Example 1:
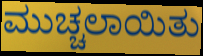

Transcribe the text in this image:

ಮುಚ್ಚಲಾಯಿತು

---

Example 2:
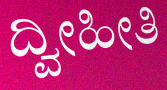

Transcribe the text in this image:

ದ್ವೀಹೀತಿ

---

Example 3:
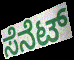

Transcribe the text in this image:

ಸೆನೆಟ್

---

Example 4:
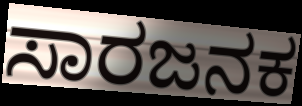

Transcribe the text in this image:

ಸಾರಜನಕ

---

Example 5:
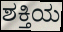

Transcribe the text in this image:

ಶಕ್ತಿಯ